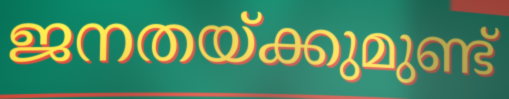
ജനതയ്ക്കുമുണ്ട്